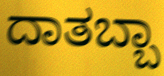
ದಾತಬ್ಬಾ